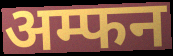
अम्फन